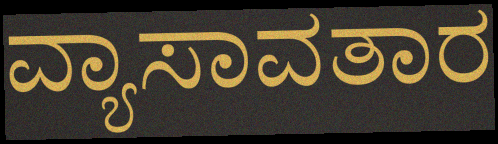
ವ್ಯಾಸಾವತಾರ